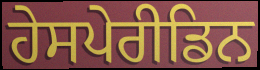
ਹੇਸਪੇਰੀਡਿਨ